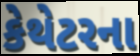
કેથેટરના